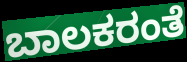
ಬಾಲಕರಂತೆ